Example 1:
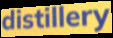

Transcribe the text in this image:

distillery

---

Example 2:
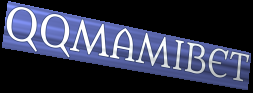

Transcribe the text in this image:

QQMAMIBET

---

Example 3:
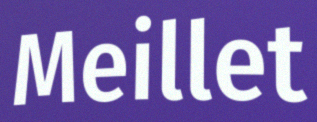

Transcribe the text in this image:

Meillet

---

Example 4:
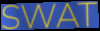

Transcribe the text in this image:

SWAT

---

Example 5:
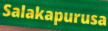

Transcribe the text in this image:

Salakapurusa